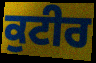
ਕੁਟੀਰ